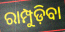
ରାମ୍ପୁଡ଼ିବା